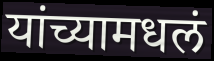
यांच्यामधलं